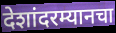
देशांदरम्यानचा